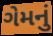
ગેમનું